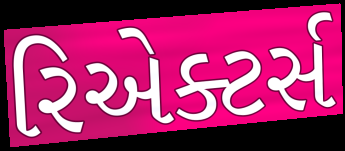
રિએક્ટર્સ